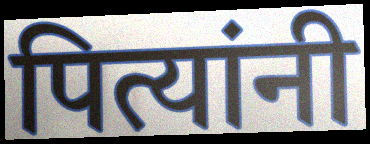
पित्यांनी